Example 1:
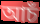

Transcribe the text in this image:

আচঁ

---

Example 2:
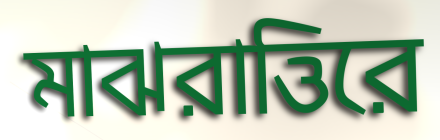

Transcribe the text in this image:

মাঝরাত্তিরে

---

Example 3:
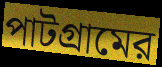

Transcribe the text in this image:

পাটগ্রামের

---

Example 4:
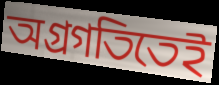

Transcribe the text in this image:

অগ্রগতিতেই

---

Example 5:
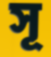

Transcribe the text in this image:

সূ